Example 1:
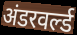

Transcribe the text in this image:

अंडरवर्ल्ड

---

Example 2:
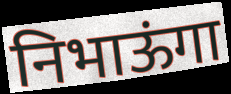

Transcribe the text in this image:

निभाऊंगा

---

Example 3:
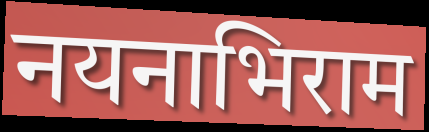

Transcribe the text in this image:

नयनाभिराम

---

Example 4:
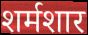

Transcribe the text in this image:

शर्मशार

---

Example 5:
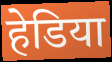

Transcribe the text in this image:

हेडिया